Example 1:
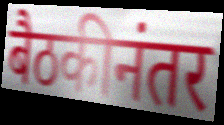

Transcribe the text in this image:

बैठकीनंतर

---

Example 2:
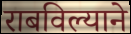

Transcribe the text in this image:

राबविल्याने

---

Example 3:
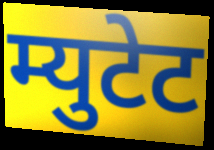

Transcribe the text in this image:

म्युटेट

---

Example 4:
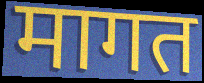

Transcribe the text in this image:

मागत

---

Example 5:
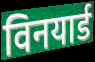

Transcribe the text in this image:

विनयार्ड